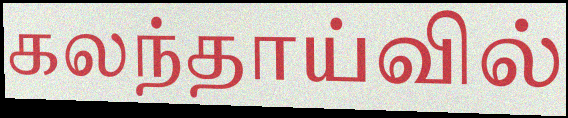
கலந்தாய்வில்